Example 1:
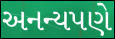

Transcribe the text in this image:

અનન્યપણે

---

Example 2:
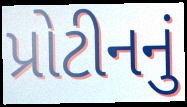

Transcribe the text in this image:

પ્રોટીનનું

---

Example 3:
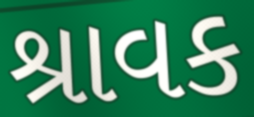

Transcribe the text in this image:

શ્રાવક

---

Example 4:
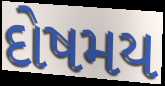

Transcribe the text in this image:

દોષમય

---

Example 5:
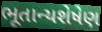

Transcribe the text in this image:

ભૂતાન્યશેષેણ